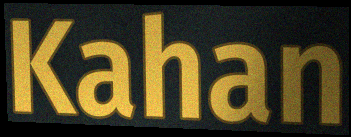
Kahan